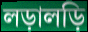
লড়ালড়ি